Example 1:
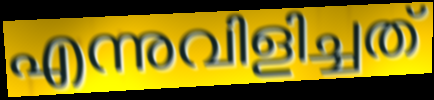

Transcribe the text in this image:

എന്നുവിളിച്ചത്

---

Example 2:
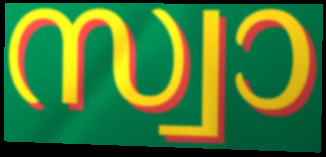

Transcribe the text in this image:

സ്വാ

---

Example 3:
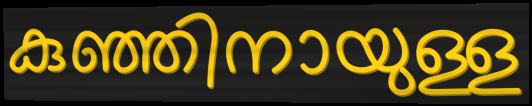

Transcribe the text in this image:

കുഞ്ഞിനായുള്ള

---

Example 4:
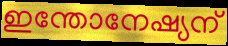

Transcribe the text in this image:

ഇന്തോനേഷ്യന്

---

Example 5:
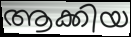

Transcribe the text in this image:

ആക്കിയ